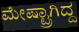
ಮೇಷ್ಟ್ರಾಗಿದ್ದ